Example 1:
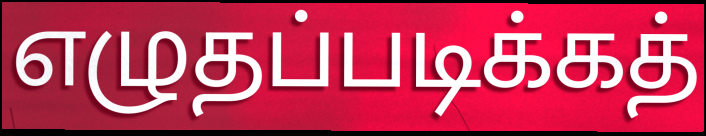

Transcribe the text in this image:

எழுதப்படிக்கத்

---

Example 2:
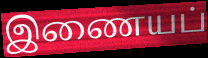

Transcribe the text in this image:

இணையப்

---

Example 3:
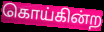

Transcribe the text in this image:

கொய்கின்ற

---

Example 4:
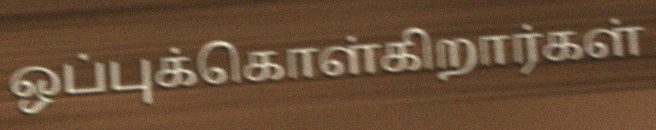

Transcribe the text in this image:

ஒப்புக்கொள்கிறார்கள்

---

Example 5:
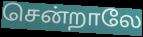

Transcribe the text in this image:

சென்றாலே